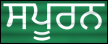
ਸਪੂਰਨ